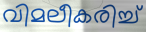
വിമലീകരിച്ച്